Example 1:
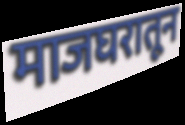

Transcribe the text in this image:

माजघरातून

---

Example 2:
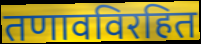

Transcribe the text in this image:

तणावविरहित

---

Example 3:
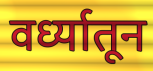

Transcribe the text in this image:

वर्ध्यातून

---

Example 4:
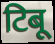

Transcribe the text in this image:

टिबू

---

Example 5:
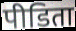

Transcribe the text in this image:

पीडिता